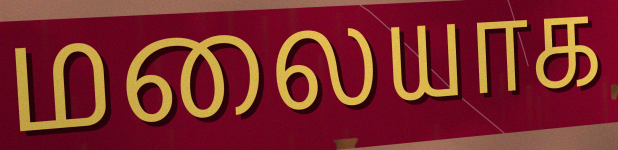
மலையாக